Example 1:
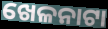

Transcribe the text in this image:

ଖେଳନାଟା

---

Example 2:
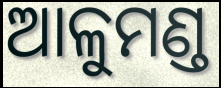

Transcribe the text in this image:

ଆଳୁମଣ୍ଡ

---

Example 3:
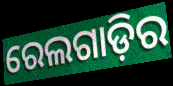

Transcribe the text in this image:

ରେଲଗାଡ଼ିର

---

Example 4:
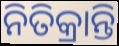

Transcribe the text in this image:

ନିତିକ୍ରାନ୍ତି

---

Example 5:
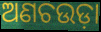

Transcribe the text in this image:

ଅଣଚଉଡ଼ା